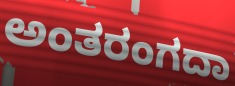
ಅಂತರಂಗದಾ